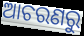
ଆଚରଣରୁ